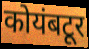
कोयंबटूर